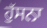
ਹੁੱਸਨਾ